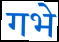
गभे